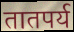
तातपर्य